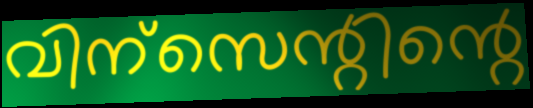
വിന്സെന്റിന്റെ